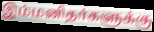
இம்மனிதர்களுக்கு